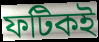
ফটিকই